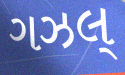
ગઝલ્